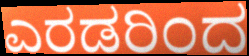
ಎರಡರಿಂದ